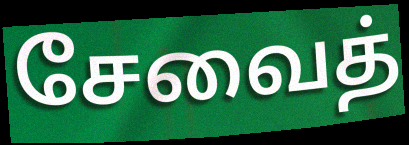
சேவைத்